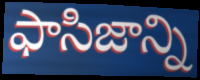
ఫాసిజాన్ని